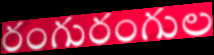
రంగురంగుల